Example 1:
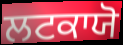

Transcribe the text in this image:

ਲਟਕਾਯੋ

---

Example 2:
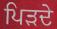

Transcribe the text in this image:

ਪਿੜਦੇ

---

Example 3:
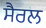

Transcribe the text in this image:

ਸੈਰਲ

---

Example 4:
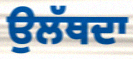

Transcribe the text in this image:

ਉਲੱਥਦਾ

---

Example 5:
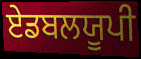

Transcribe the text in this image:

ਏਡਬਲਯੂਪੀ